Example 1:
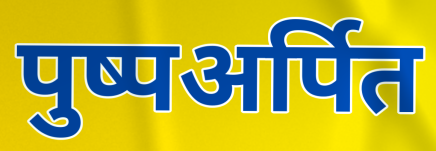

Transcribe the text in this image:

पुष्पअर्पित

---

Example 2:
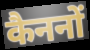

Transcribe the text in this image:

कैननों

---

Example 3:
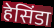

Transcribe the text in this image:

हेसिंडा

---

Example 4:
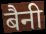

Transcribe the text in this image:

बैनी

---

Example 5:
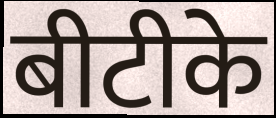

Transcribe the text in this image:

बीटीके